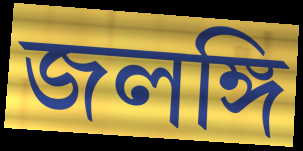
জলঙ্গি